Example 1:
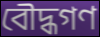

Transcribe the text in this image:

বৌদ্ধগণ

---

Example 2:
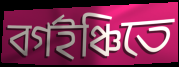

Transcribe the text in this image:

বর্গইঞ্চিতে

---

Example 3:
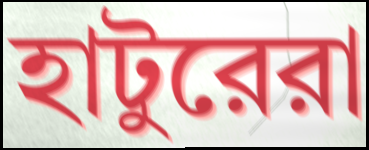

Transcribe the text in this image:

হাটুরেরা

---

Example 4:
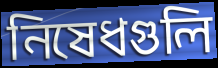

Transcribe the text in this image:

নিষেধগুলি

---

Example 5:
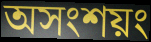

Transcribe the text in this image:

অসংশয়ং